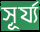
সূর্য্য